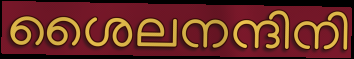
ശൈലനന്ദിനി